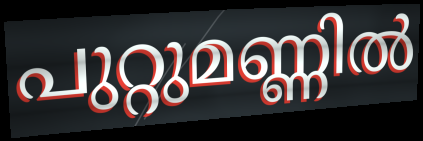
പുറ്റുമണ്ണിൽ